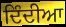
ਦਿੰਦੀਆ